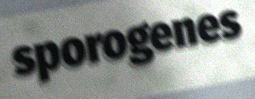
sporogenes